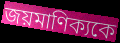
জয়মাণিক্যকে